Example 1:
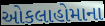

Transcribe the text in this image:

ઓકલાહોમાના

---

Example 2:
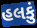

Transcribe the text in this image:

હલકું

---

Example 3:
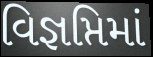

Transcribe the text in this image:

વિજ્ઞપ્તિમાં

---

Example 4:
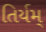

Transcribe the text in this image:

તિર્યમ્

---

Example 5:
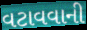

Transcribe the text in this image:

વટાવવાની